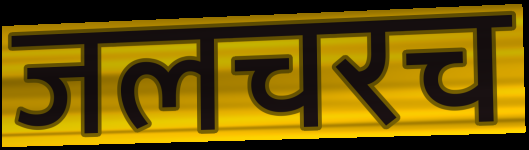
जलचरच